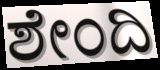
ಶೇಂದಿ